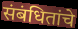
संबंधितांचे